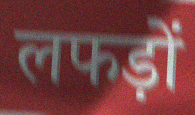
लफड़ों